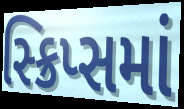
સ્ક્રિપ્સમાં